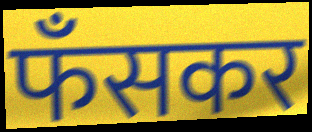
फँसकर